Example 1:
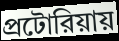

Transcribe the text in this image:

প্রটোরিয়ায়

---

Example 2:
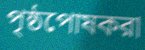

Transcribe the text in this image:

পৃষ্ঠপোষকরা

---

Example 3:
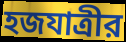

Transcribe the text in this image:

হজযাত্রীর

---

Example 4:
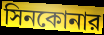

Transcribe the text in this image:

সিনকোনার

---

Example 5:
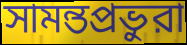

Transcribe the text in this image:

সামন্তপ্রভুরা